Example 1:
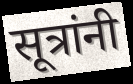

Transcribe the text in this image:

सूत्रांनी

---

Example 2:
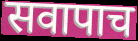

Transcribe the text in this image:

सवापाच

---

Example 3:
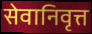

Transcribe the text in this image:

सेवानिवृत्त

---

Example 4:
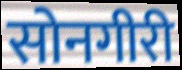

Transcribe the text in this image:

सोनगीरी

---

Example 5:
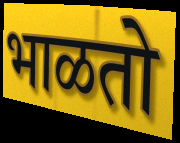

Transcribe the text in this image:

भाळतो